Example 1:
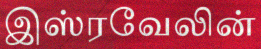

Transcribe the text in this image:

இஸ்ரவேலின்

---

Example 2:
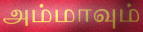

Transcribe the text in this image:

அம்மாவும்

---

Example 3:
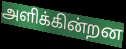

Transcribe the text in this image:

அளிக்கின்றன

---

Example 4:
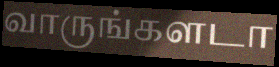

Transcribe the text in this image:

வாருங்களடா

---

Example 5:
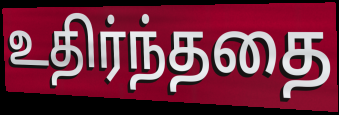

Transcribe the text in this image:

உதிர்ந்ததை